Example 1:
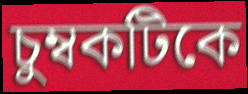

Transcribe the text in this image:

চুম্বকটিকে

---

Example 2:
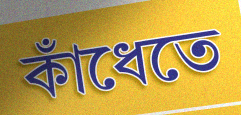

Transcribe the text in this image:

কাঁধেতে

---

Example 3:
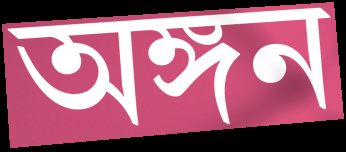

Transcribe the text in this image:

অঙ্গন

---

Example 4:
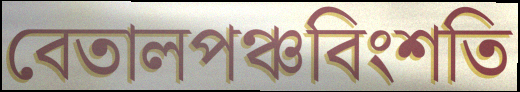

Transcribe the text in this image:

বেতালপঞ্চবিংশতি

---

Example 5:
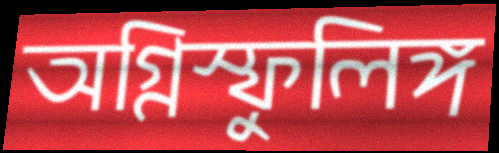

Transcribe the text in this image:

অগ্নিস্ফুলিঙ্গ